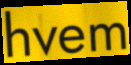
hvem